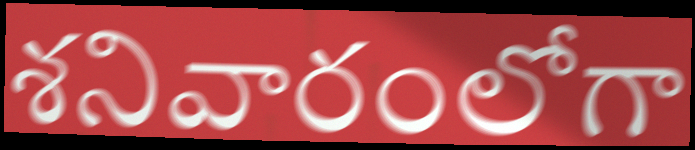
శనివారంలోగా